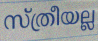
സ്ത്രീയല്ല